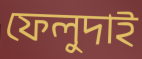
ফেলুদাই